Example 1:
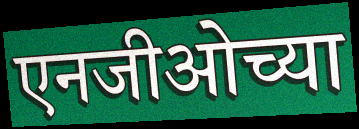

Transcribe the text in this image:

एनजीओच्या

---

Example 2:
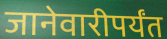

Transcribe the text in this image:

जानेवारीपर्यंत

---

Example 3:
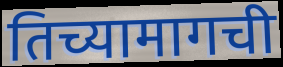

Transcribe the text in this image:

तिच्यामागची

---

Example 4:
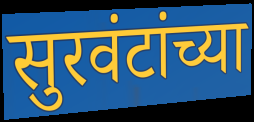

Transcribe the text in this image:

सुरवंटांच्या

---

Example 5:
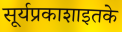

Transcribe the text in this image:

सूर्यप्रकाशाइतके